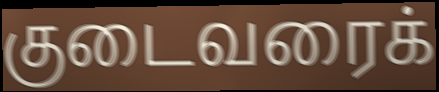
குடைவரைக்